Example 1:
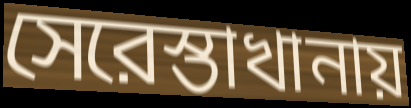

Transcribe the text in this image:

সেরেস্তাখানায়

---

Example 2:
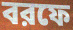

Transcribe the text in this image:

বরফে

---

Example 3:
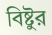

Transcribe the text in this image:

বিষ্টুর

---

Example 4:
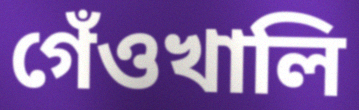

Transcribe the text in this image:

গেঁওখালি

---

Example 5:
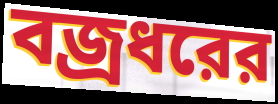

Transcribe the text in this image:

বজ্রধরের